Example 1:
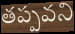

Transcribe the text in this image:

తప్పవని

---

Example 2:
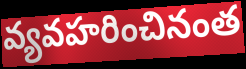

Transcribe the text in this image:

వ్యవహరించినంత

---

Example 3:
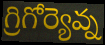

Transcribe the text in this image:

గ్రిగోర్యెవ్న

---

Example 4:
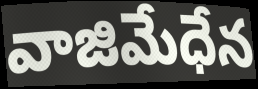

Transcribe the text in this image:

వాజిమేధేన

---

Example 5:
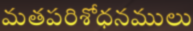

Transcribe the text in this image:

మతపరిశోధనములు